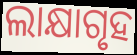
ଲାକ୍ଷାଗୃହ